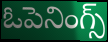
ఓపెనింగ్స్